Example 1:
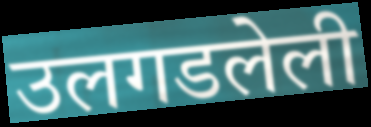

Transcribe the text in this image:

उलगडलेली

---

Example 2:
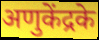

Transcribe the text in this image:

अणुकेंद्रके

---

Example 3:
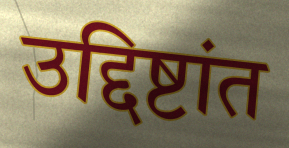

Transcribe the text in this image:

उद्दिष्टांत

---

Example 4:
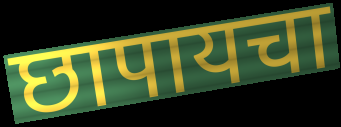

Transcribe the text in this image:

छापायचा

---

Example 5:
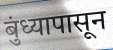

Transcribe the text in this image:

बुंध्यापासून